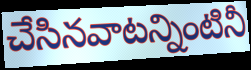
చేసినవాటన్నింటినీ